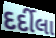
દર્દીલા